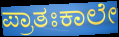
ಪ್ರಾತಃಕಾಲೇ